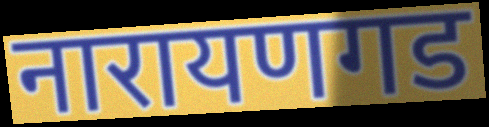
नारायणगड